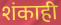
शंकाही